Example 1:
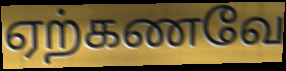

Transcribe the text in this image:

ஏற்கணவே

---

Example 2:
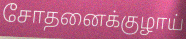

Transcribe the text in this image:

சோதனைக்குழாய்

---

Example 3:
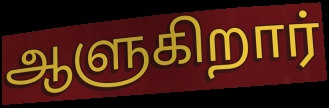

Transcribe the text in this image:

ஆளுகிறார்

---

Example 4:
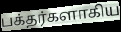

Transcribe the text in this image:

பக்தர்களாகிய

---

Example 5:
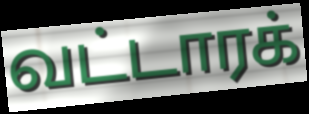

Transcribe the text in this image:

வட்டாரக்